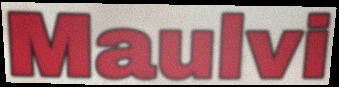
Maulvi